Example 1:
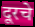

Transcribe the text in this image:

दूरचे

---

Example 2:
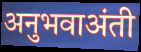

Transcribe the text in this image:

अनुभवाअंती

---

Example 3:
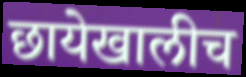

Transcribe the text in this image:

छायेखालीच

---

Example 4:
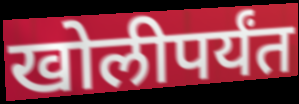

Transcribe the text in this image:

खोलीपर्यंत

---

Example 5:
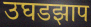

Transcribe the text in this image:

उघडझाप